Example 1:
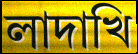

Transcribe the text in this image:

লাদাখি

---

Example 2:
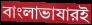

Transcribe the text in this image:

বাংলাভাষারই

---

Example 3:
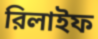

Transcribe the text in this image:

রিলাইফ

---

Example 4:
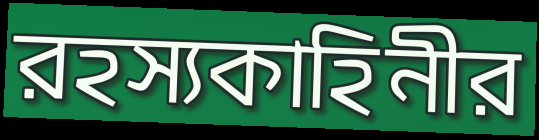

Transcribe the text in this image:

রহস্যকাহিনীর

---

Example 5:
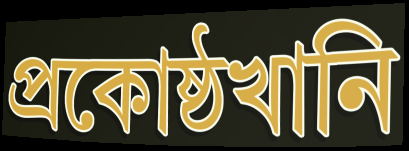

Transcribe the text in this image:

প্রকোষ্ঠখানি